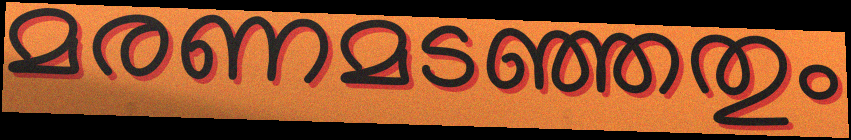
മരണമടഞ്ഞതും